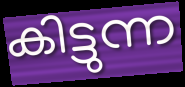
കിട്ടുന്ന